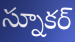
స్నూకర్